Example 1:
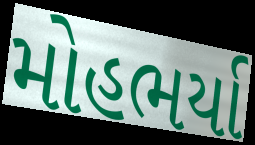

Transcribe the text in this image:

મોહભર્યા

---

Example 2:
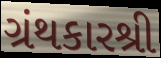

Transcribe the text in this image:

ગ્રંથકારશ્રી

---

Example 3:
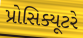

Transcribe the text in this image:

પ્રોસિક્યૂટરે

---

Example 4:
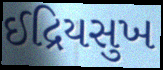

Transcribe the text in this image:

ઈદ્રિયસુખ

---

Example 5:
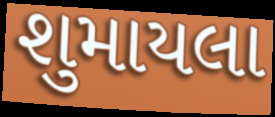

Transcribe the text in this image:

શુમાયલા